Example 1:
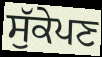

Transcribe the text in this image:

ਸੁੱਕੇਪਣ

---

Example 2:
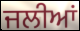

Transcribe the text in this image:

ਜਲੀਆਂ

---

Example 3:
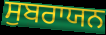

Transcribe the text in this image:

ਸੁਬਰਾਯਨ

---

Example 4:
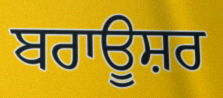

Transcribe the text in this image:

ਬਰਾਊਸ਼ਰ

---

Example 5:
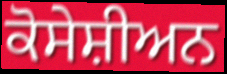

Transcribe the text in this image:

ਕੋਸੇਸ਼ੀਅਨ